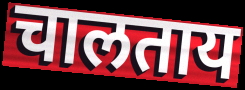
चालताय